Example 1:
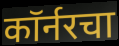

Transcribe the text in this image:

कॉर्नरचा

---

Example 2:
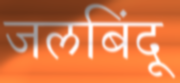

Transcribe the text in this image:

जलबिंदू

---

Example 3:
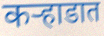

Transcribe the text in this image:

कऱ्हाडात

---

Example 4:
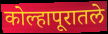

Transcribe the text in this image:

कोल्हापूरातले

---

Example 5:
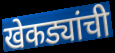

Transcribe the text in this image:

खेकड्यांची